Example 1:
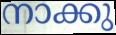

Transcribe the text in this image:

നാക്കു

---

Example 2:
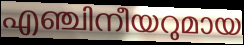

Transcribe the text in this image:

എഞ്ചിനീയറുമായ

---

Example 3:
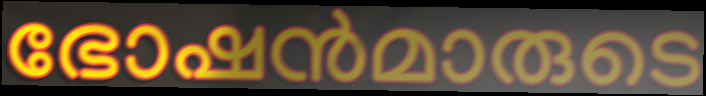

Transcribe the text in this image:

ഭോഷൻമാരുടെ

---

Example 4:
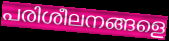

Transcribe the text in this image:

പരിശീലനങ്ങളെ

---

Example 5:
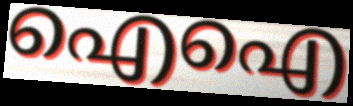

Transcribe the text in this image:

ഐഐ